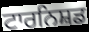
ਟਾਰਨਿਸ਼ਡ